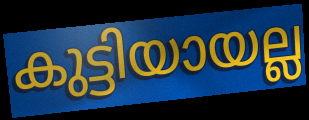
കുട്ടിയായല്ല